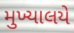
મુખ્યાલયે